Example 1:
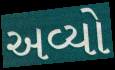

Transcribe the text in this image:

અવ્યો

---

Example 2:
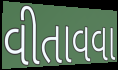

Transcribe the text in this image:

વીતાવવા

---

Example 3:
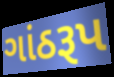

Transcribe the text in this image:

ગાંઠરૂપ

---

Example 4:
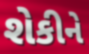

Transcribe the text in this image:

શેકીને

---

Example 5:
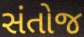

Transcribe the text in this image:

સંતોજ